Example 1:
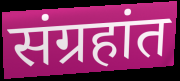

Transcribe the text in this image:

संग्रहांत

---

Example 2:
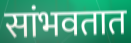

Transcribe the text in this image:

सांभवतात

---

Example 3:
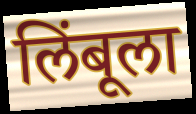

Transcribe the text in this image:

लिंबूला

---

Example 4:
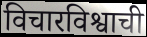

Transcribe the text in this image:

विचारविश्वाची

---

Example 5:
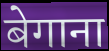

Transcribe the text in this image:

बेगाना